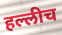
हल्लीच